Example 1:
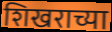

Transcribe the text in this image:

शिखराच्या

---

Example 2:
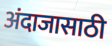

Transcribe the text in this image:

अंदाजासाठी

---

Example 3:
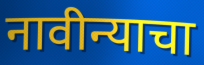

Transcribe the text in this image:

नावीन्याचा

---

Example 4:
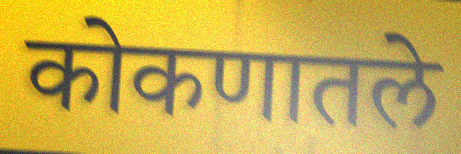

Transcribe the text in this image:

कोकणातले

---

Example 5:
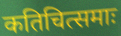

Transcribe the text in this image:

कतिचित्समाः